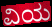
ವಿಯ